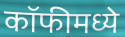
कॉफीमध्ये